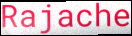
Rajache